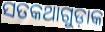
ସତକଥାଗୁଡ଼ାକ